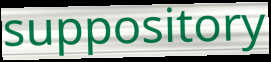
suppository